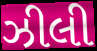
ઝીલી